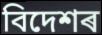
বিদেশৰ